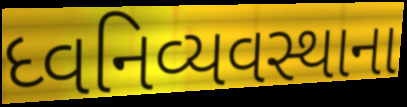
ધ્વનિવ્યવસ્થાના